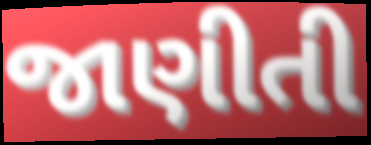
જાણીતી